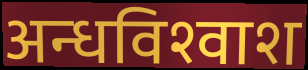
अन्धविश्वाश